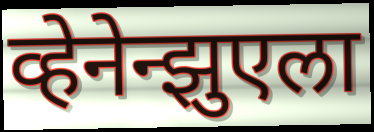
व्हेनेन्झुएला